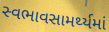
સ્વભાવસામર્થ્યમાં